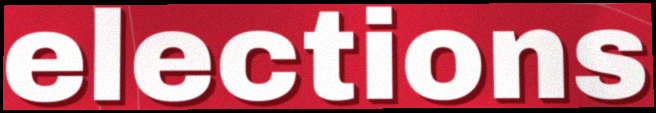
elections